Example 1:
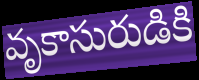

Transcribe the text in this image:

వృకాసురుడికి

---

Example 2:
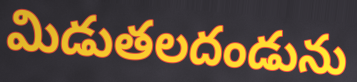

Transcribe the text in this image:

మిడుతలదండును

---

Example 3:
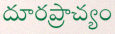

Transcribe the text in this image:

దూరప్రాచ్యం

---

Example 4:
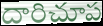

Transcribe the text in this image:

దారిచూప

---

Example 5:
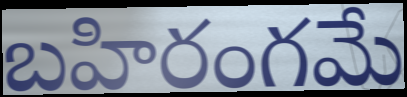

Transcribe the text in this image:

బహిరంగమే